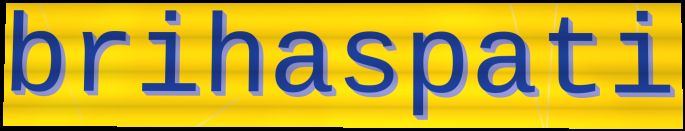
brihaspati